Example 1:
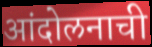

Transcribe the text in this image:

आंदोलनाची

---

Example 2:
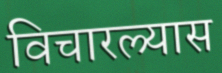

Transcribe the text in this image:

विचारल्यास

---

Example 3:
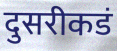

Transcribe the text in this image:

दुसरीकडं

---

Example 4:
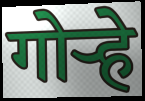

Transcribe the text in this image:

गोऱ्हे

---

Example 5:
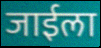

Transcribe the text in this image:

जाईला